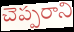
చెప్పరాని